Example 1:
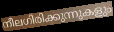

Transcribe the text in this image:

നീലഗിരിക്കുന്നുകളും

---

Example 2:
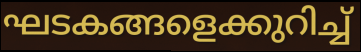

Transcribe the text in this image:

ഘടകങ്ങളെക്കുറിച്ച്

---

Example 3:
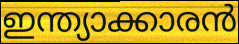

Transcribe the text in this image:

ഇന്ത്യാക്കാരൻ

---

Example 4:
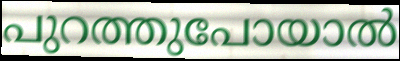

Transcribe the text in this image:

പുറത്തുപോയാൽ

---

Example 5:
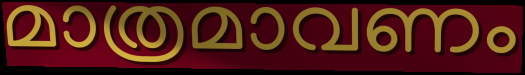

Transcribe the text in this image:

മാത്രമാവണം